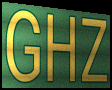
GHZ